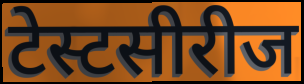
टेस्टसीरीज